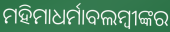
ମହିମାଧର୍ମାବଲମ୍ବୀଙ୍କର